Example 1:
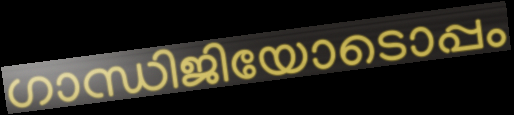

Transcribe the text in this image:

ഗാന്ധിജിയോടൊപ്പം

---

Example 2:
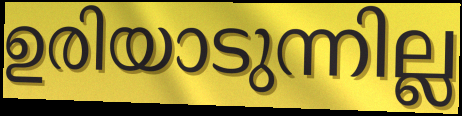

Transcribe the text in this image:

ഉരിയാടുന്നില്ല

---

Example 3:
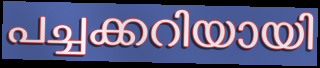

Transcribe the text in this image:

പച്ചക്കറിയായി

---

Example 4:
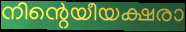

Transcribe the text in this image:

നിന്റെയീയക്ഷരാ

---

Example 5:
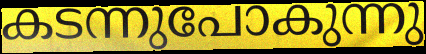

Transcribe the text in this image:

കടന്നുപോകുന്നു